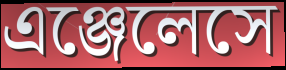
এঞ্জেলেসে